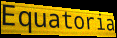
Equatoria